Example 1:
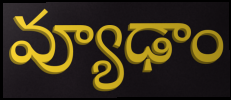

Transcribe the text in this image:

వ్యూఢాం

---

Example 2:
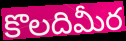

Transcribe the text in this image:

కొలదిమీర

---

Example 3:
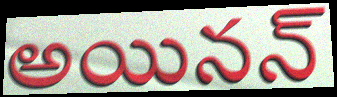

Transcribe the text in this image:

అయినన్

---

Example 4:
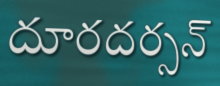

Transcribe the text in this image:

దూరదర్సన్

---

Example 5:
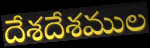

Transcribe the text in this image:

దేశదేశముల